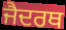
ਜੈਦਰਥ